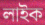
লাইক